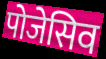
पोजेसिव